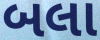
બલા